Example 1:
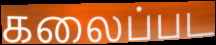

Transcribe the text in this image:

கலைப்பட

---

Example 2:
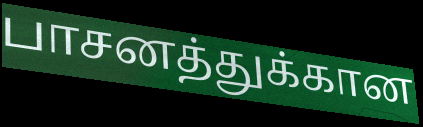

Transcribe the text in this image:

பாசனத்துக்கான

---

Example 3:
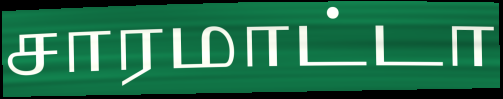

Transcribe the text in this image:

சாரமாட்டா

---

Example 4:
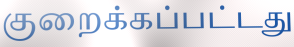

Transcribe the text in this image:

குறைக்கப்பட்டது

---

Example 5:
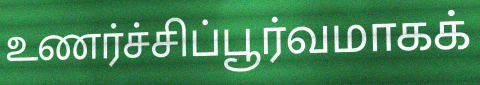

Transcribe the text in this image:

உணர்ச்சிப்பூர்வமாகக்